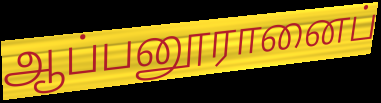
ஆப்பனூரானைப்